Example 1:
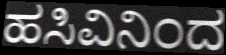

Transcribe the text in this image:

ಹಸಿವಿನಿಂದ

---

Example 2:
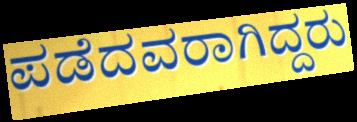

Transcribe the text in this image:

ಪಡೆದವರಾಗಿದ್ದರು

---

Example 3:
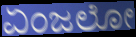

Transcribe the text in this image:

ಏಂಜಲೋ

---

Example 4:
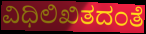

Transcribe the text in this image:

ವಿಧಿಲಿಖಿತದಂತೆ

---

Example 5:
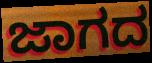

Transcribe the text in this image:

ಜಾಗದ